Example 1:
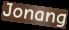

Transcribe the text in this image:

Jonang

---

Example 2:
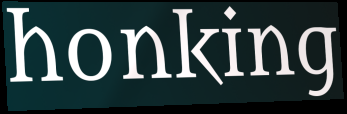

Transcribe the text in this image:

honking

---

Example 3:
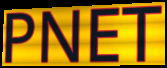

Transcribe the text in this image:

PNET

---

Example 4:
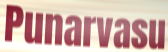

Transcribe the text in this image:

Punarvasu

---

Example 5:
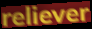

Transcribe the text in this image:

reliever